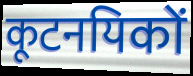
कूटनयिकों